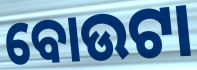
ବୋଉଟା